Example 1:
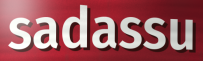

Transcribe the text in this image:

sadassu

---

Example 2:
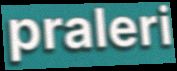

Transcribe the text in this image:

praleri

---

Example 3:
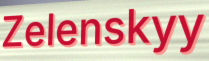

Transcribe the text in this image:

Zelenskyy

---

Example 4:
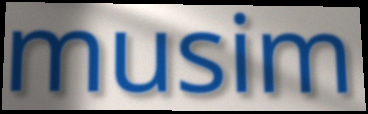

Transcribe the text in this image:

musim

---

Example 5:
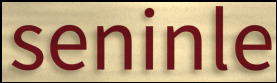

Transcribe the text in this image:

seninle